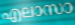
എലാസാ